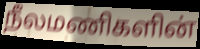
நீலமணிகளின்